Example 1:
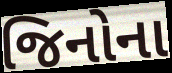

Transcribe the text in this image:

જિનોના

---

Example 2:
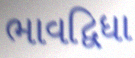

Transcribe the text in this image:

ભાવદ્વિધા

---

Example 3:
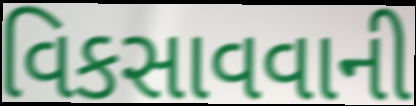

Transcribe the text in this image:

વિકસાવવાની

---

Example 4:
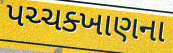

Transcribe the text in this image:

પચ્ચક્ખાણના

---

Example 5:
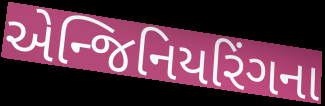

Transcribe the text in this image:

એન્જિનિયરિંગના